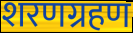
शरणग्रहण